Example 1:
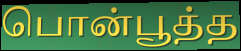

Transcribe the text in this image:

பொன்பூத்த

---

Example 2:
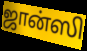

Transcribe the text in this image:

ஜான்ஸி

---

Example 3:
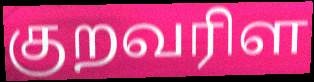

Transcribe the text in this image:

குறவரிள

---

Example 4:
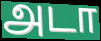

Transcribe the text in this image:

அடா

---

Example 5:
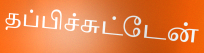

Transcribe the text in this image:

தப்பிச்சுட்டேன்